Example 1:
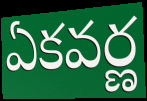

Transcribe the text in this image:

ఏకవర్ణ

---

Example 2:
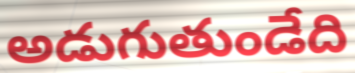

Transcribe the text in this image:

అడుగుతుండేది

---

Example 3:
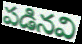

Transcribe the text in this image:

పడినవి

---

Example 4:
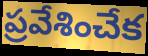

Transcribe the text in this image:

ప్రవేశించేక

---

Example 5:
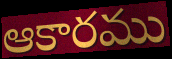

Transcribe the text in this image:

ఆకారము